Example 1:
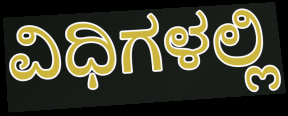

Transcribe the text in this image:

ವಿಧಿಗಳಲ್ಲಿ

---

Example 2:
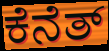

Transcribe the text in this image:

ಕೆನೆತ್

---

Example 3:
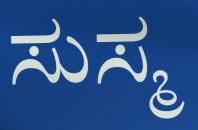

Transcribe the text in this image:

ಸುಸ್ಮ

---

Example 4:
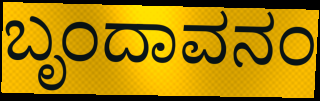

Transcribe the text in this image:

ಬೃಂದಾವನಂ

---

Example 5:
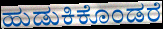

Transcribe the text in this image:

ಹುಡುಕಿಕೊಂಡರೆ